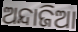
ଅନ୍ଦାଜିଆ